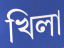
খিলা